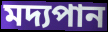
মদ্যপান